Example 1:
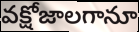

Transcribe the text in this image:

వక్షోజాలగానూ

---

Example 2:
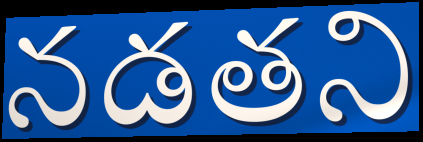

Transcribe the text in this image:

నడతని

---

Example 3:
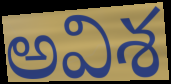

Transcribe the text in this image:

అవిశ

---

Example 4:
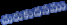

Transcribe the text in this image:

చురుకుదనము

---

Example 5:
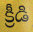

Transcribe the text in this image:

క్రీడి